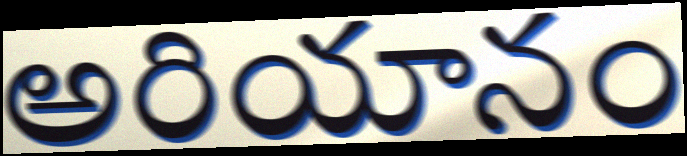
అరియానం